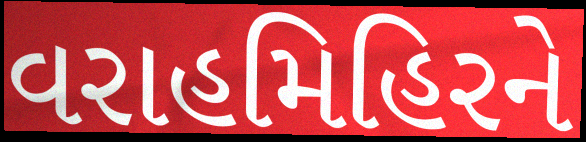
વરાહમિહિરને